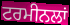
ਟਰਮੀਨਲਾਂ